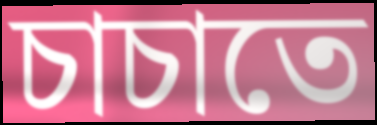
চাচাতে